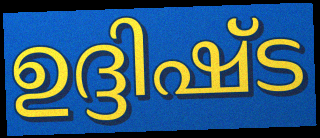
ഉദ്ദിഷ്ട